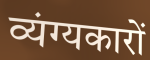
व्‍यंग्‍यकारों